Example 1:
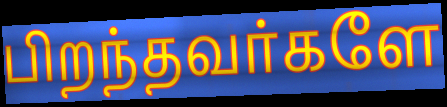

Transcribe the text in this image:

பிறந்தவர்களே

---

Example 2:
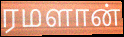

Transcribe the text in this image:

ரமளான்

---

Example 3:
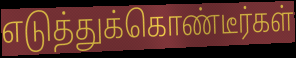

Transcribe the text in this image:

எடுத்துக்கொண்டீர்கள்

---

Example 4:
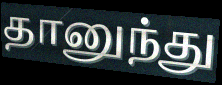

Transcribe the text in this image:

தானுந்து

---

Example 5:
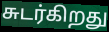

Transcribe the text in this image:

சுடர்கிறது